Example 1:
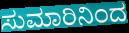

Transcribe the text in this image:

ಸುಮಾರಿನಿಂದ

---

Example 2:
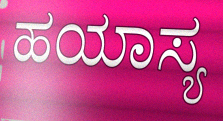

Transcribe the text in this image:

ಹಯಾಸ್ಯ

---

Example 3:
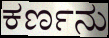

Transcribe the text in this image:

ಕರ್ಣನು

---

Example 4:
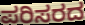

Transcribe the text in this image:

ಪರಿಸರದ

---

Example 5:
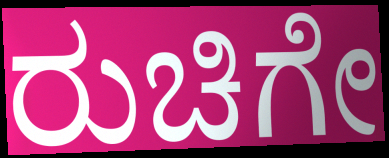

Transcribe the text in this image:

ರುಚಿಗೇ